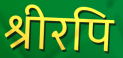
श्रीरपि